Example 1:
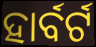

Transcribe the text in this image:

ହାର୍ବର୍ଟ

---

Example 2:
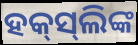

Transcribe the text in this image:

ହକ୍‌ସ୍‌ଲିଙ୍କ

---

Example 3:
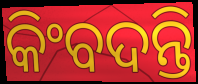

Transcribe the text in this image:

କିଂବଦନ୍ତି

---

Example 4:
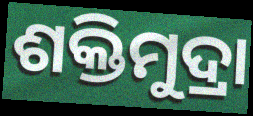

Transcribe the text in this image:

ଶକ୍ତିମୁଦ୍ରା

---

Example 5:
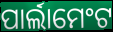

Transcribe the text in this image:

ପାର୍ଲାମେଂଟ